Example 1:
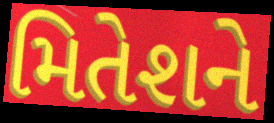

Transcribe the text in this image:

મિતેશને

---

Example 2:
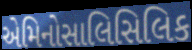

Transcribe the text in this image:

એમિનોસાલિસિલિક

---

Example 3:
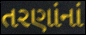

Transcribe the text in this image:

તરણાંનાં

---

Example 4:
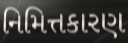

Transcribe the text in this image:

નિમિત્તકારણ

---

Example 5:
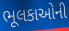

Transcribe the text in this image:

ભૂલકાઓની